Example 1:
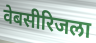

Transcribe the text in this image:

वेबसीरिजला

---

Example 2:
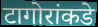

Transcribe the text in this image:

टागोरांकडे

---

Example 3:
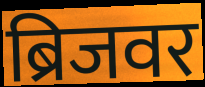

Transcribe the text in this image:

ब्रिजवर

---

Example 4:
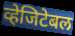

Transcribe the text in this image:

व्हेजिटेबल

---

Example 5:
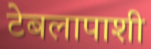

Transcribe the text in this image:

टेबलापाशी